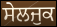
ਸੇਲਜੁਕ